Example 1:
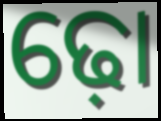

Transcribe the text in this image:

ଢ଼ୋ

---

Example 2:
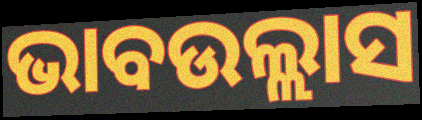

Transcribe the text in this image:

ଭାବଉଲ୍ଲାସ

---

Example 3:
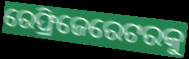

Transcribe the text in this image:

ରେଫ୍ରିଜେରେଟରକୁ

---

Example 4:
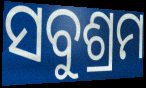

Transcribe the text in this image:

ସବୁଶ୍ରମ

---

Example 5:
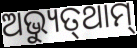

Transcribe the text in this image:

ଅଭ୍ୟୁତ୍‌ଥାମ୍